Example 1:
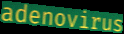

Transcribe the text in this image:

adenovirus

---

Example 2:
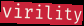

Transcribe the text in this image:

virility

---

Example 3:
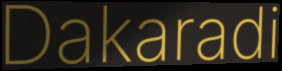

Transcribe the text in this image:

Dakaradi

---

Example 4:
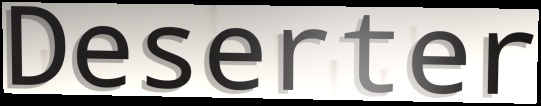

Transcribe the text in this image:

Deserter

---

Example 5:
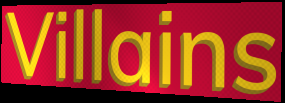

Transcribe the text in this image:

Villains